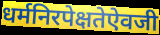
धर्मनिरपेक्षतेऐवजी